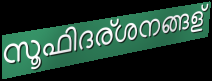
സൂഫിദര്ശനങ്ങള്